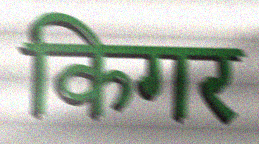
किगर